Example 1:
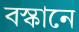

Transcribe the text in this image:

বস্কানে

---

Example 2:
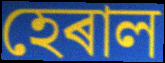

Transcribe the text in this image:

হেৰাল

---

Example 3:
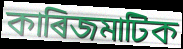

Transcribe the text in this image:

কাৰিজমাটিক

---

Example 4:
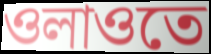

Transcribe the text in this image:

ওলাওতে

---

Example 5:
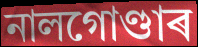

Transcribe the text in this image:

নালগোণ্ডাৰ